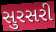
સુરસરી